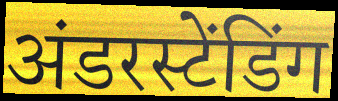
अंडरस्टेंडिंग